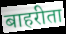
बाहरीता